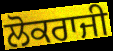
ਲੋਕਰਾਜੀ